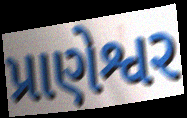
પ્રાણેશ્વર